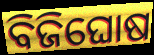
ବିଜିଘୋଷ